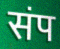
संप